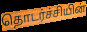
தொடர்ச்சியின்